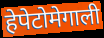
हेपेटोमेगाली